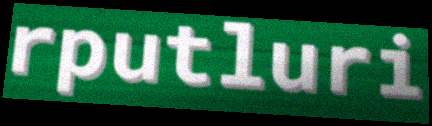
rputluri